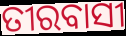
ତୀରବାସୀ